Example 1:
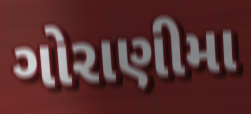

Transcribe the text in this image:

ગોરાણીમા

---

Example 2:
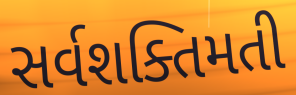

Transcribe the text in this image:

સર્વશક્તિમતી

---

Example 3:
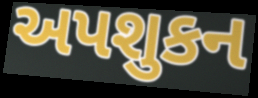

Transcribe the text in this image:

અપશુકન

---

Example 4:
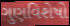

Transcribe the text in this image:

ગુણવિશેષો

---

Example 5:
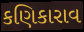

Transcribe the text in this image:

કણિકારાવ